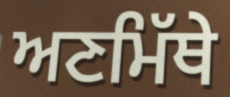
ਅਣਮਿੱਥੇ